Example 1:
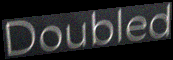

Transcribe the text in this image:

Doubled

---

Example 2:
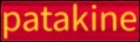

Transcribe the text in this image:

patakine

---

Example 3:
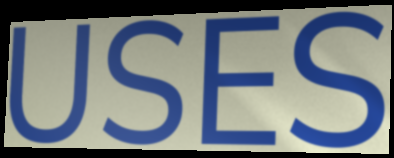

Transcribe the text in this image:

USES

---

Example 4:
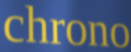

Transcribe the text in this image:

chrono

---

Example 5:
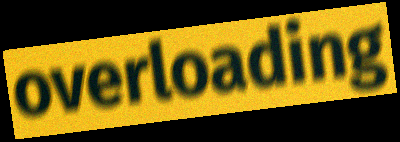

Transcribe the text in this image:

overloading